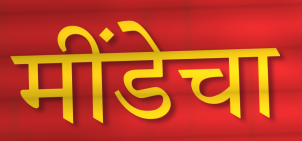
मींडेचा